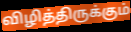
விழித்திருக்கும்